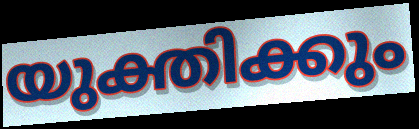
യുക്തിക്കും